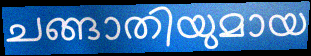
ചങ്ങാതിയുമായ